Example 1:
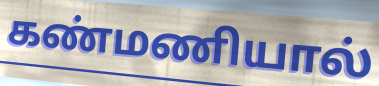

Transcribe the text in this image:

கண்மணியால்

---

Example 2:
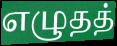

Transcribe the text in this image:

எழுதத்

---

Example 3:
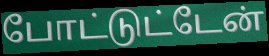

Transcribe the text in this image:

போட்டுட்டேன்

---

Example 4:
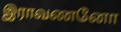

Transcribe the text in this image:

இராவணனோ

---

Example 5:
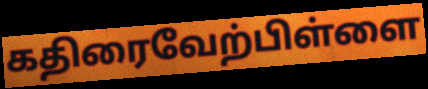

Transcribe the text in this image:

கதிரைவேற்பிள்ளை